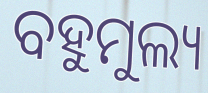
ବହୁମୁଲ୍ୟ